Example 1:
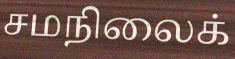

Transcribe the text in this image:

சமநிலைக்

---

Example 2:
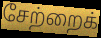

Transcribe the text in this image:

சேற்றைக்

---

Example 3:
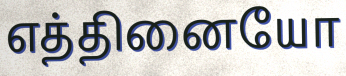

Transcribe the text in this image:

எத்தினையோ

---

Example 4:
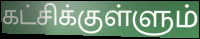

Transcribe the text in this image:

கட்சிக்குள்ளும்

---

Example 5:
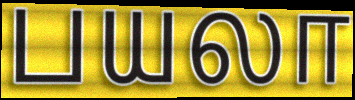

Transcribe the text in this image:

பயலா